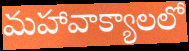
మహావాక్యాలలో